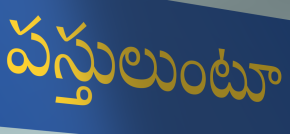
పస్తులుంటూ